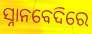
ସ୍ନାନବେଦିରେ